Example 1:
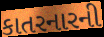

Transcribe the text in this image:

કાતરનારની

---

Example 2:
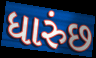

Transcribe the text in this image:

ધારુંછ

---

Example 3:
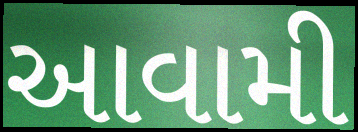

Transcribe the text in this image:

આવામી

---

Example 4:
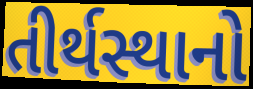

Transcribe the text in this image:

તીર્થસ્થાનો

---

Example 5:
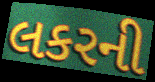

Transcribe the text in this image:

લકરની